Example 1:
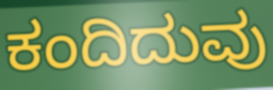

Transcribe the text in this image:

ಕಂದಿದುವು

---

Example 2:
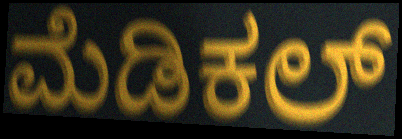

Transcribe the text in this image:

ಮೆಡಿಕಲ್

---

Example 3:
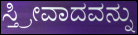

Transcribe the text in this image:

ಸ್ತ್ರೀವಾದವನ್ನು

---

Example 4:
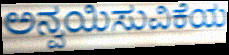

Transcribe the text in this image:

ಅನ್ವಯಿಸುವಿಕೆಯ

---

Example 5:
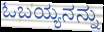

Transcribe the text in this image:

ಓಬಯ್ಯನನ್ನು